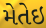
મેતેઇ